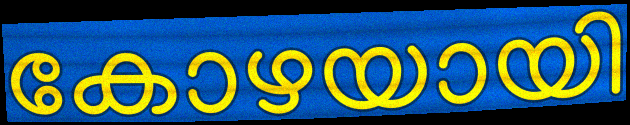
കോഴയായി